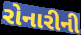
રોનારીની